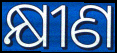
କ୍ଷୀଣ